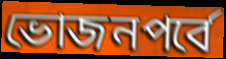
ভোজনপর্বে